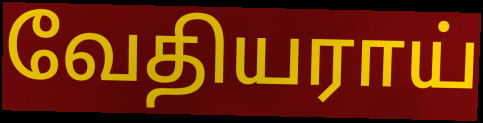
வேதியராய்